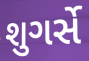
શુગર્સે